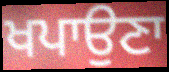
ਖਪਾਉਣਾ